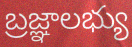
బ్రజ్ఞాలభ్యు